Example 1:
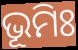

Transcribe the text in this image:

ଭୂମିଃ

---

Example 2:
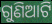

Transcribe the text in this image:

ଗୁଣିଆଟି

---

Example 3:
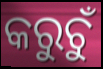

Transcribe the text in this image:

କରୁଚୁଁ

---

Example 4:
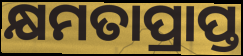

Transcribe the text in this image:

କ୍ଷମତାପ୍ରାପ୍ତ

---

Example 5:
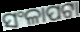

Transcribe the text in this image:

ସଂଳାପଟା